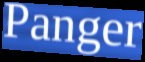
Panger